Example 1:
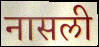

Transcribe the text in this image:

नासली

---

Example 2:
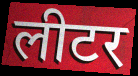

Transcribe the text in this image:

लीटर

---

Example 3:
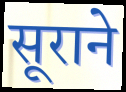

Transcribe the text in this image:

सूराने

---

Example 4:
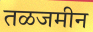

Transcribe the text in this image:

तळजमीन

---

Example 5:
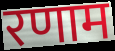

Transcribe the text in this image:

रणाम